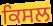
ਕਿਸਲ